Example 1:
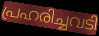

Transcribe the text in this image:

പ്രഹരിച്ചവടി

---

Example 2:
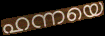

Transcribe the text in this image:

ഹന്നയെ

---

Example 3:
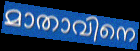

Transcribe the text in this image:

മാതാവിനെ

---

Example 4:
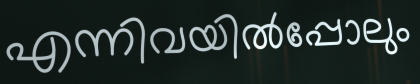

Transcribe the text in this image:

എന്നിവയിൽപ്പോലും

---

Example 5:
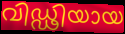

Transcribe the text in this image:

വിഡ്ഢിയായ